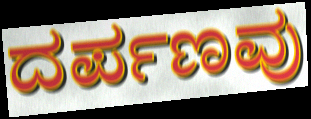
ದರ್ಪಣವು